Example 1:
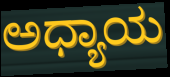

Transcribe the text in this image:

ಅಧ್ಯಾಯ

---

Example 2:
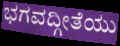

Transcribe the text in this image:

ಭಗವದ್ಗೀತೆಯು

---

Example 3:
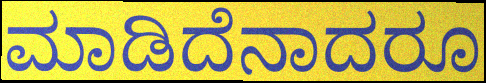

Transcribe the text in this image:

ಮಾಡಿದೆನಾದರೂ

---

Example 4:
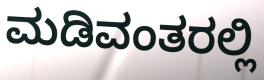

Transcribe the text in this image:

ಮಡಿವಂತರಲ್ಲಿ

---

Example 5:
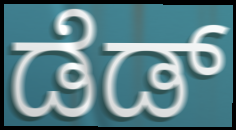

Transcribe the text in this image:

ಡೆಡ್